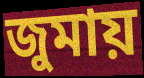
জুমায়